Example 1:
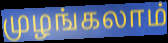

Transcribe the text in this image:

முழங்கலாம்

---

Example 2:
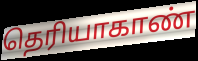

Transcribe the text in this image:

தெரியாகாண்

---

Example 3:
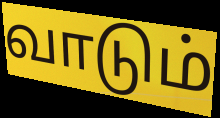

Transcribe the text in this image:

வாடும்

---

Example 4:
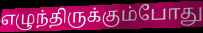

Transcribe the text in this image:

எழுந்திருக்கும்போது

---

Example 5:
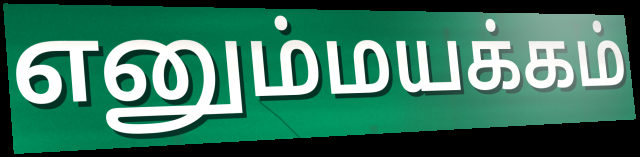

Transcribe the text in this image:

எனும்மயக்கம்